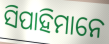
ସିପାହିମାନେ